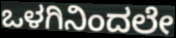
ಒಳಗಿನಿಂದಲೇ